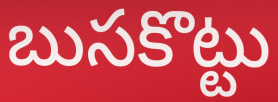
బుసకొట్టు